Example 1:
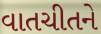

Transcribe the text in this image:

વાતચીતને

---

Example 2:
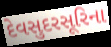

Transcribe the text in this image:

દેવસુદરસૂરિના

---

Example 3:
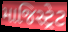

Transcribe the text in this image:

માજિસ્ટ્રેટ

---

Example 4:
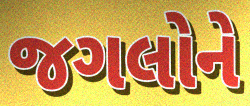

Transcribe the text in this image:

જગલોને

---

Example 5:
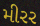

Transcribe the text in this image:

મીરર